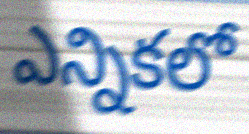
ఎన్నికలో